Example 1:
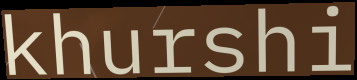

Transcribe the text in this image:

khurshi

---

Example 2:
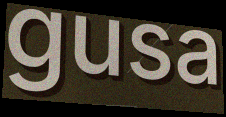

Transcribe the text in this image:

gusa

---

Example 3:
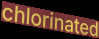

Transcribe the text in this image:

chlorinated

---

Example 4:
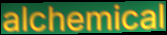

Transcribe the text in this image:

alchemical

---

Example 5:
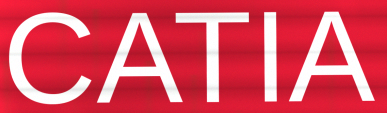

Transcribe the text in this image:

CATIA